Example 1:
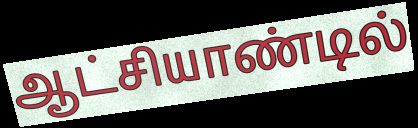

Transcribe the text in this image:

ஆட்சியாண்டில்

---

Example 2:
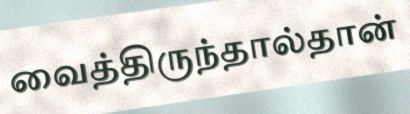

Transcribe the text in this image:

வைத்திருந்தால்தான்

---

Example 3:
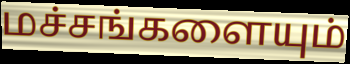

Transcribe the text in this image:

மச்சங்களையும்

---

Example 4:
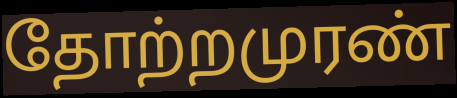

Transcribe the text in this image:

தோற்றமுரண்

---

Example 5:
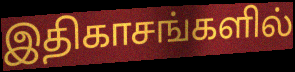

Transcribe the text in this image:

இதிகாசங்களில்